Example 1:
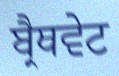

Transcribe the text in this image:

ਬ੍ਰੈਥਵੇਟ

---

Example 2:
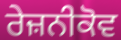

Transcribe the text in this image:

ਰੇਜ਼ਨੀਕੋਵ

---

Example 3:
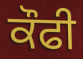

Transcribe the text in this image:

ਕੌਫੀ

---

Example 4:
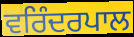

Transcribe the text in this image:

ਵਰਿੰਦਰਪਾਲ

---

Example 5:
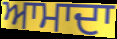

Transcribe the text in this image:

ਆਮਾਦਾ